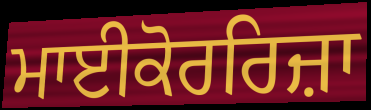
ਮਾਈਕੋਰਰਿਜ਼ਾ